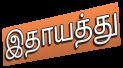
இதாயத்து